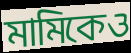
মামিকেও